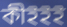
কীইইই